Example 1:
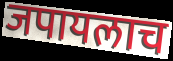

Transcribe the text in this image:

जपायलाच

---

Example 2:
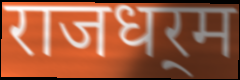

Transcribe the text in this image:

राजधर्म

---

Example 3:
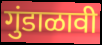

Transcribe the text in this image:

गुंडाळावी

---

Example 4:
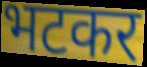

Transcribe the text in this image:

भटकर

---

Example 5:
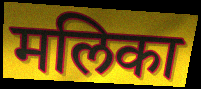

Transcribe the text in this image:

मलिका